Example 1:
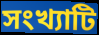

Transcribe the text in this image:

সংখ্যাটি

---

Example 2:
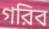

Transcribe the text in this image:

গরিব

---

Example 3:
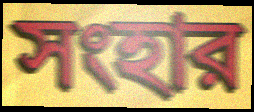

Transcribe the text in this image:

সংহার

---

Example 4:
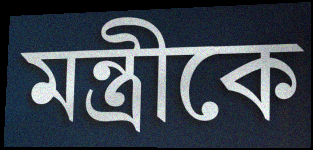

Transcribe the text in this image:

মন্ত্রীকে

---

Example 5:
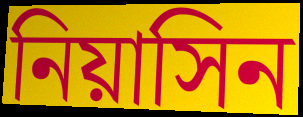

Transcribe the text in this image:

নিয়াসিন